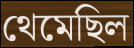
থেমেছিল